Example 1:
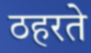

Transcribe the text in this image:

ठहरते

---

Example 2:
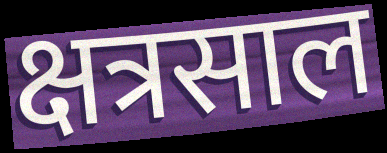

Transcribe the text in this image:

क्षत्रसाल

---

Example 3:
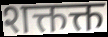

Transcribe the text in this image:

शक्तक्त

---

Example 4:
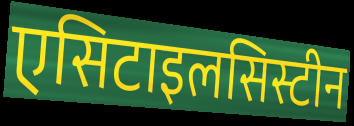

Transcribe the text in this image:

एसिटाइलसिस्टीन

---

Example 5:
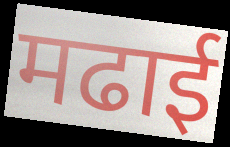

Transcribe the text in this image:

मढाई